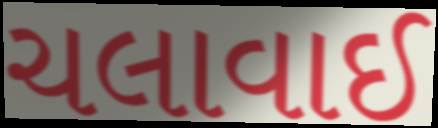
ચલાવાઈ